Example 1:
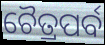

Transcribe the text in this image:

ଚୈତ୍ରପର୍ବ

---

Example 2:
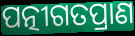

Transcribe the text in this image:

ପତ୍ନୀଗତପ୍ରାଣ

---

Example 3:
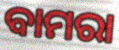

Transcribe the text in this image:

ବାମରା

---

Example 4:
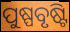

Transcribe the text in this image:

ପୁଷ୍ପବୃଷ୍ଟି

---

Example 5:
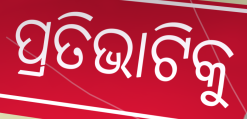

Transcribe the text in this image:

ପ୍ରତିଭାଟିକୁ